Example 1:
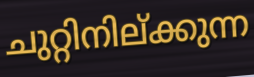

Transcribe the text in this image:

ചുറ്റിനില്ക്കുന്ന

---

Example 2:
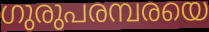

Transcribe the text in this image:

ഗുരുപരമ്പരയെ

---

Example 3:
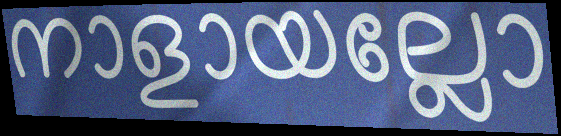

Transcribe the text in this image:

നാളായല്ലോ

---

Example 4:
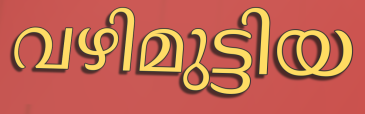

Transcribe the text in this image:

വഴിമുട്ടിയ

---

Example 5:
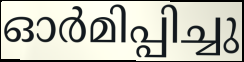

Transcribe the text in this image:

ഓർമിപ്പിച്ചു